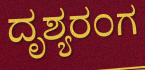
ದೃಶ್ಯರಂಗ